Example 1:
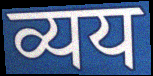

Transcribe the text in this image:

व्यय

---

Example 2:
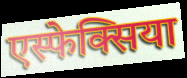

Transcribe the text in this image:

एस्फेक्सिया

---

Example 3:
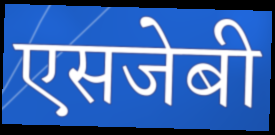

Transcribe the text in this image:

एसजेबी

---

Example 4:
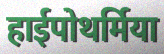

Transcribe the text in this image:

हाईपोथर्मिया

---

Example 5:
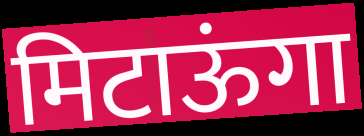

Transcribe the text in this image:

मिटाऊंगा